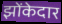
झोंकेदार